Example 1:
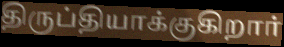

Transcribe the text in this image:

திருப்தியாக்குகிறார்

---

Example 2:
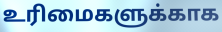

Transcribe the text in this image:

உரிமைகளுக்காக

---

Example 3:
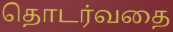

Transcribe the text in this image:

தொடர்வதை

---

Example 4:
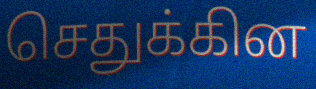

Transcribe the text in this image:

செதுக்கின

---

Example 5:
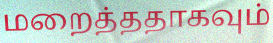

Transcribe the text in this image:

மறைத்ததாகவும்